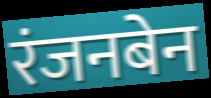
रंजनबेन